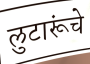
लुटारूंचे